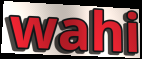
wahi